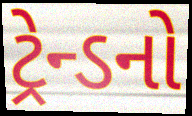
ટ્રેન્ડનો